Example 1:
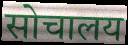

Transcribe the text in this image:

सोचालय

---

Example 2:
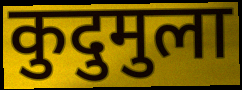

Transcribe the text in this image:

कुदुमुला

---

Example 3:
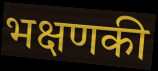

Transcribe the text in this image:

भक्षणकी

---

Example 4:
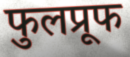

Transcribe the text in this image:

फुलप्रूफ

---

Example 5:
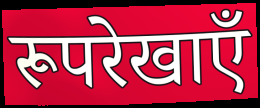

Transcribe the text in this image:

रूपरेखाएँ